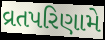
વ્રતપરિણામે